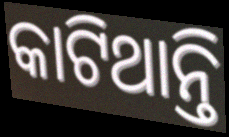
କାଟିଥାନ୍ତି